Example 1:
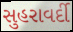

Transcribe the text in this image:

સુહરાવર્દી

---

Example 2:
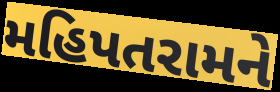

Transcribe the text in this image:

મહિપતરામને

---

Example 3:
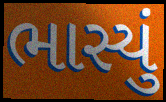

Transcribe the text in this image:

ભાસ્યું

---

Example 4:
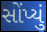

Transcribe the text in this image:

સોંપ્યું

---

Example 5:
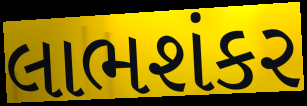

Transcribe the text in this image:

લાભશંકર